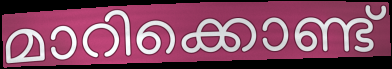
മാറിക്കൊണ്ട്